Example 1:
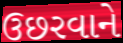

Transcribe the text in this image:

ઉછરવાને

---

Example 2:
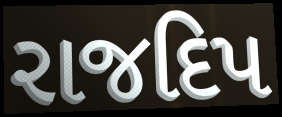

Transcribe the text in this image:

રાજદિપ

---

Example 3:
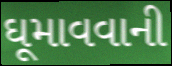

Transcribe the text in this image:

ઘૂમાવવાની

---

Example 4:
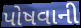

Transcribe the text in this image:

પોષવાની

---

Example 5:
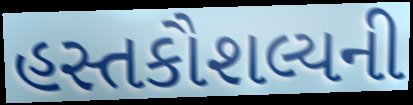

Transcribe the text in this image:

હસ્તકૌશલ્યની